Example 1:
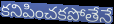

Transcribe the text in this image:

కనిపించకపోతేనే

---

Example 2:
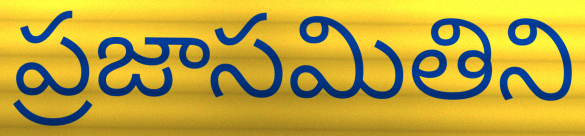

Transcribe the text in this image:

ప్రజాసమితిని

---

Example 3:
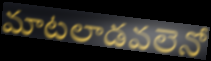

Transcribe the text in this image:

మాటలాడవలెనో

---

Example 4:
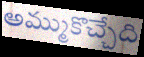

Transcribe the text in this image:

అమ్ముకొచ్చేది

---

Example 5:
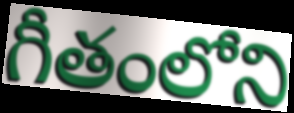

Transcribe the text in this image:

గీతంలోని